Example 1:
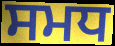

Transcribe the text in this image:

ਸਮਧ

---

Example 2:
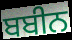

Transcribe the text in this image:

ਬਬੀਨ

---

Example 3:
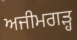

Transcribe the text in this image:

ਅਜੀਮਗੜ੍ਹ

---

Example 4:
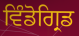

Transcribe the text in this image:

ਵਿੰਡੋਗ੍ਰਿਡ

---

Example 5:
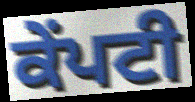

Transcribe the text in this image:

ਕੇਂਪਟੀ